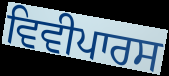
ਵਿਵੀਪਾਰਸ